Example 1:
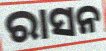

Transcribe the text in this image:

ରାସନ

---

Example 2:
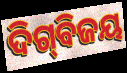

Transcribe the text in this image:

ଦିଗ୍‌ବିଜୟ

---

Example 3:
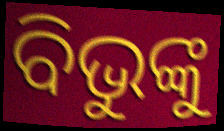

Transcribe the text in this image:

ବିଭୁଙ୍କୁ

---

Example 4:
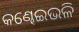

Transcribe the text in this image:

କଣ୍ଢେଇଭଳି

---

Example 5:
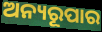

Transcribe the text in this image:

ଅନ୍ୟରୂପାର